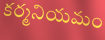
కర్మనియమం